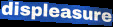
displeasure